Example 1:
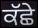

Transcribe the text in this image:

ਕੱਛੇ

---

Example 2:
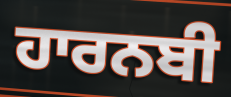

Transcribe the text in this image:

ਹਾਰਨਬੀ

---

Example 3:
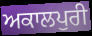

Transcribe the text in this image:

ਅਕਾਲਪੁਰੀ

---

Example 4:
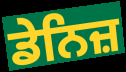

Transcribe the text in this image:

ਡੇਨਿਜ਼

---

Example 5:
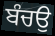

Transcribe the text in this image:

ਬੰਚਉ